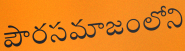
పౌరసమాజంలోని